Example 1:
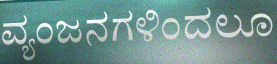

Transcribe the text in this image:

ವ್ಯಂಜನಗಳಿಂದಲೂ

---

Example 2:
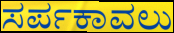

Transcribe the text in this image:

ಸರ್ಪಕಾವಲು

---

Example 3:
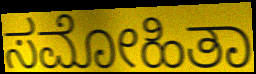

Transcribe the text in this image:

ಸಮೋಹಿತಾ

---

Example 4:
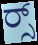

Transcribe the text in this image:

ರ್‍ಸ್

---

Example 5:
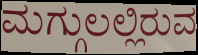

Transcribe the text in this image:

ಮಗ್ಗುಲಲ್ಲಿರುವ